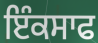
ਇੰਕਸਾਫ